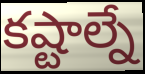
కష్టాల్నే